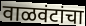
वाळवंटांचा